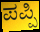
ಪಪ್ಪಿ